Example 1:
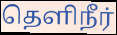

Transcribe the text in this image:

தெளிநீர்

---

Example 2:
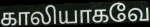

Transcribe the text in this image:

காலியாகவே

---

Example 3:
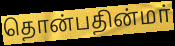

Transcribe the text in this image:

தொன்பதின்மர்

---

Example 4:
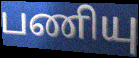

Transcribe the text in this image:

பணியு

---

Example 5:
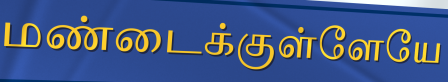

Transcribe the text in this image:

மண்டைக்குள்ளேயே